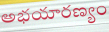
అభయారణ్యం